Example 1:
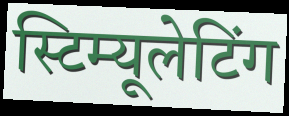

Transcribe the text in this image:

स्टिम्यूलेटिंग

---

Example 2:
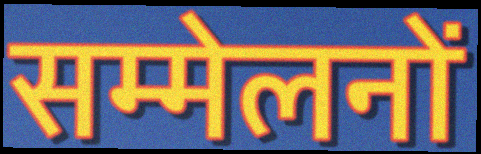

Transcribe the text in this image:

सम्मेलनों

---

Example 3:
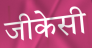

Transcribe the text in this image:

जीकेसी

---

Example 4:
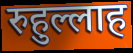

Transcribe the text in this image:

रुहुल्लाह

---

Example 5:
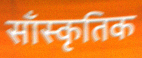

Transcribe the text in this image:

साँस्कृतिक